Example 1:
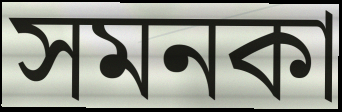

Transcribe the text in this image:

সমনকা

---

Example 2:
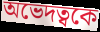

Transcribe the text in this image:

অভেদত্বকে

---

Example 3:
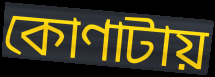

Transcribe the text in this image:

কোণাটায়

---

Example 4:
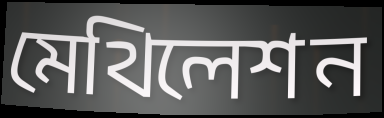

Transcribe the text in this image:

মেথিলেশন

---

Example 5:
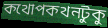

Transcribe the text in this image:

কথোপকথনটুকু